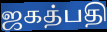
ஜகத்பதி